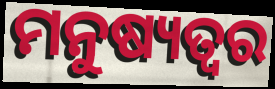
ମନୁଷ୍ୟତ୍ବର